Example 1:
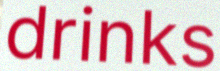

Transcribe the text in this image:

drinks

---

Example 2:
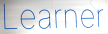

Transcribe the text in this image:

Learner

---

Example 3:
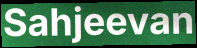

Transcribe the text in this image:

Sahjeevan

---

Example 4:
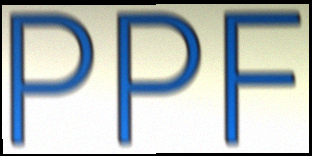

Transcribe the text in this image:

PPF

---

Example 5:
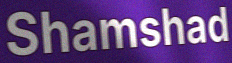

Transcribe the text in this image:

Shamshad